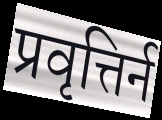
प्रवृत्तिर्न